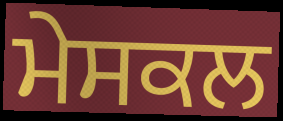
ਮੇਸਕਲ